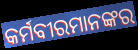
କର୍ମବୀରମାନଙ୍କର